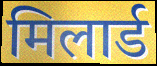
मिलार्ड